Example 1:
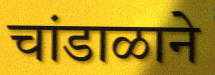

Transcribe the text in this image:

चांडाळाने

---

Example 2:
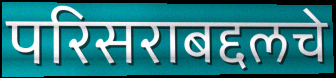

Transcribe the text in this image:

परिसराबद्दलचे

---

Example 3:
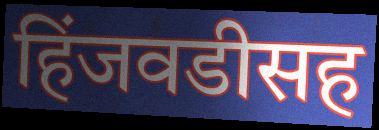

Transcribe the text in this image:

हिंजवडीसह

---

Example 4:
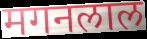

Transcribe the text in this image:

मगनलाल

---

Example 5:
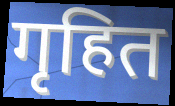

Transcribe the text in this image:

गृहित